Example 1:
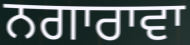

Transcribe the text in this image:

ਨਗਾਰਾਵਾ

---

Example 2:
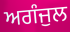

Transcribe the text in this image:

ਅਗੰਜੁਲ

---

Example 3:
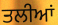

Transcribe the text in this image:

ਤਲੀਆਂ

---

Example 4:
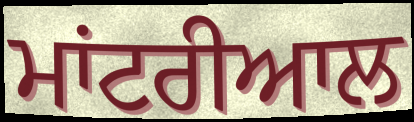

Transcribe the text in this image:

ਮਾਂਟਰੀਆਲ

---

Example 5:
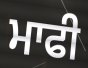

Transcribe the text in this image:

ਮਾਫੀ